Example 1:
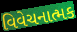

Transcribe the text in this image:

વિવેચનાત્મક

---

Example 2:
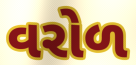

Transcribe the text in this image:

વરોળ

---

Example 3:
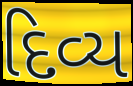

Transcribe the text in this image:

દિવ્ય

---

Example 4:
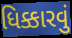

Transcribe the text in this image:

ધિક્કારવું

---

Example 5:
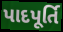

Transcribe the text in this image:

પાદપૂર્તિ